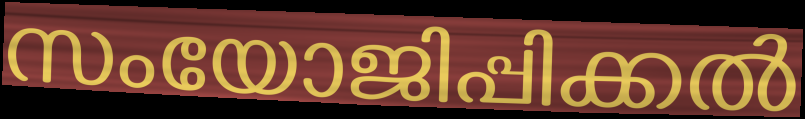
സംയോജിപ്പിക്കൽ